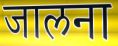
जालना